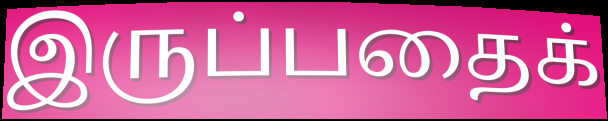
இருப்பதைக்